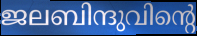
ജലബിന്ദുവിന്റെ